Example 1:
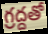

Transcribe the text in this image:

గ్రద్దతో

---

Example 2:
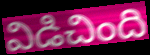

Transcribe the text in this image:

విడిచింది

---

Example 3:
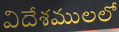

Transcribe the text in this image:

విదేశములలో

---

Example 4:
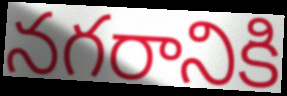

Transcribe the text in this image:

నగరానికి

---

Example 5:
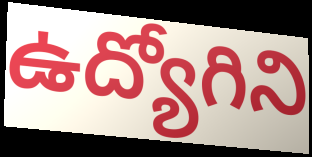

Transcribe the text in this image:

ఉద్యోగిని